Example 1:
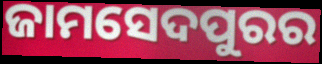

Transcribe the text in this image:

ଜାମସେଦପୁରର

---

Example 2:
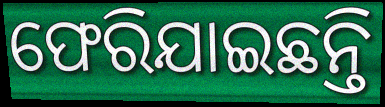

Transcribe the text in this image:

ଫେରିଯାଇଛନ୍ତି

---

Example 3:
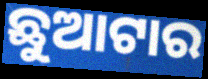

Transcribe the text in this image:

ଛୁଆଟାର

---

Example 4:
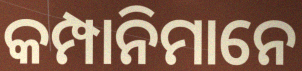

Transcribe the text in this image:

କମ୍ପାନିମାନେ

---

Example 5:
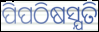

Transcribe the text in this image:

ପିପଠିଷସ୍ଯତି